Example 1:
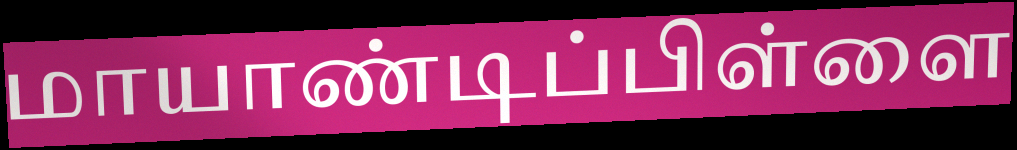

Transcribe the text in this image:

மாயாண்டிப்பிள்ளை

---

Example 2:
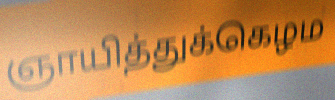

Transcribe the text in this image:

ஞாயித்துக்கெழம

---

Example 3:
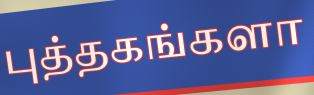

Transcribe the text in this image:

புத்தகங்களா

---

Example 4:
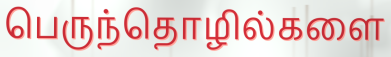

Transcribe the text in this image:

பெருந்தொழில்களை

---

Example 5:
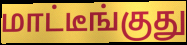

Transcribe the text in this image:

மாட்டீங்குது